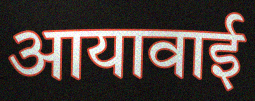
आयावाई